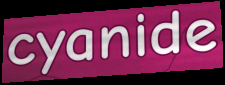
cyanide